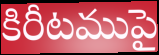
కిరీటముపై